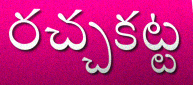
రచ్చకట్ట